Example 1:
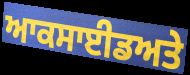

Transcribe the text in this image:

ਆਕਸਾਈਡਅਤੇ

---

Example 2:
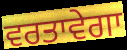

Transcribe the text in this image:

ਵਰਤਾਵੇਗਾ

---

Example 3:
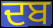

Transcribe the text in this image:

ਦਬ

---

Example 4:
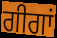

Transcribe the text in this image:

ਗੀਗਾਂ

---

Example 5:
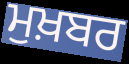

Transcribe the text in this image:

ਮੁਖ਼ਬਰ